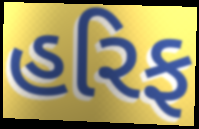
હરિફ